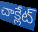
చాక్లేట్